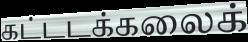
கட்டடக்கலைக்